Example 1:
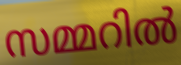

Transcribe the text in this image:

സമ്മറിൽ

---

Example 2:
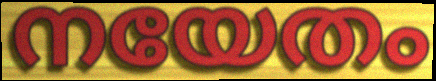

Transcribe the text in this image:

നയേതം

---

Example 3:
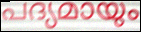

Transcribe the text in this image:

പദ്യമായും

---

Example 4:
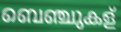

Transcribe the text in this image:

ബെഞ്ചുകള്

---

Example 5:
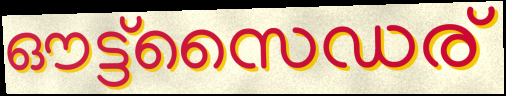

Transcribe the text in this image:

ഔട്ട്സൈഡര്